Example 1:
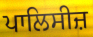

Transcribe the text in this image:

ਪਾਲਿਸੀਜ਼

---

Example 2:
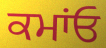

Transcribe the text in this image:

ਕਮਾਂਓ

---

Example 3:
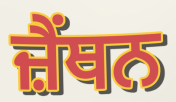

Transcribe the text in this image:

ਜ਼ੈਂਥਨ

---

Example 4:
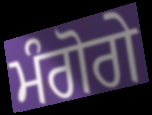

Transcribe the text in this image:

ਮੰਗੋਗੇ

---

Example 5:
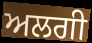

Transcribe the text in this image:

ਅਲਗੀ